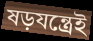
ষড়যন্ত্রেই